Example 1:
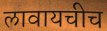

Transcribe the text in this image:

लावायचीच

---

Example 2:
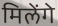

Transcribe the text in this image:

मिलेंगे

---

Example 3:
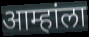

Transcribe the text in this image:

आम्हांला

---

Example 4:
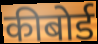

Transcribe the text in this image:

कीबोर्ड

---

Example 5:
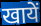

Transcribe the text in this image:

खायें